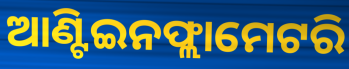
ଆଣ୍ଟିଇନଫ୍ଲାମେଟରି